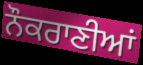
ਨੌਕਰਾਣੀਆਂ